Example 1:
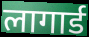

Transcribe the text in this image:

लागार्ड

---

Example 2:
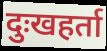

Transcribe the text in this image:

दुःखहर्ता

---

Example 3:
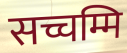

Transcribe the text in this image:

सच्चम्मि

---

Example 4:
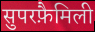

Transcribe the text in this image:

सुपरफ़ैमिली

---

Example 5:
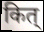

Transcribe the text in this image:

कित्